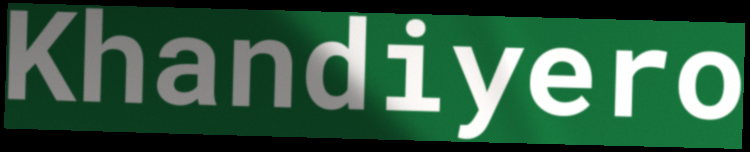
Khandiyero